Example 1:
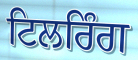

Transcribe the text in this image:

ਟਿਲਰਿੰਗ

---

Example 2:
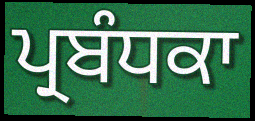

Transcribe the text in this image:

ਪ੍ਰਬੰਧਕਾ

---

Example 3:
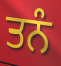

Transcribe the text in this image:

ਤਨੰ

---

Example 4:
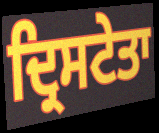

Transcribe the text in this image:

ਦ੍ਰਿਸਟੇਤਾ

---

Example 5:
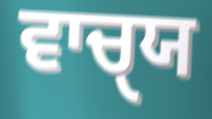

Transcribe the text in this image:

ਵਾਚੑਯ